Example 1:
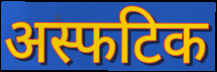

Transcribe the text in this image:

अस्फटिक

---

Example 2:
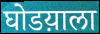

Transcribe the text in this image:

घोडय़ाला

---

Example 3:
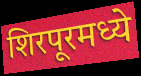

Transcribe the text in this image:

शिरपूरमध्ये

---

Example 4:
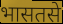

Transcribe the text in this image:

भासतसे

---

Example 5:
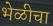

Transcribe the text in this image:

भेळीचा